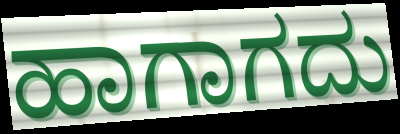
ಹಾಗಾಗದು